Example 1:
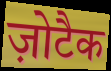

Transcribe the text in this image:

ज़ोटैक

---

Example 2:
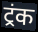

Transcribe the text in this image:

ट्रंक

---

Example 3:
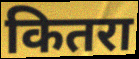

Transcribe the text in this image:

कितरा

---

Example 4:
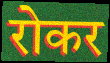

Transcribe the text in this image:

रोकर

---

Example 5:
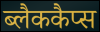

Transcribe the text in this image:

ब्लैककैप्स